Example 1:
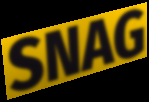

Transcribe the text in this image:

SNAG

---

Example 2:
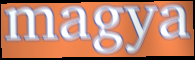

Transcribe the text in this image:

magya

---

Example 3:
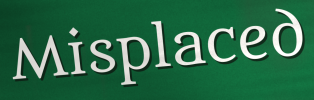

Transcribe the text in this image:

Misplaced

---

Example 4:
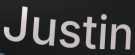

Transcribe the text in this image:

Justin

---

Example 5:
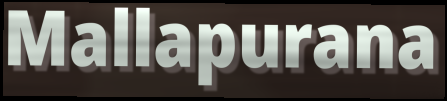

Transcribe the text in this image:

Mallapurana